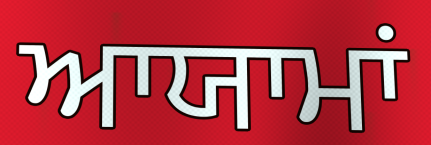
ਆਯਾਮਾਂ